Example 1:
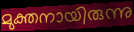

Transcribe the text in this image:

മുക്തനായിരുന്നു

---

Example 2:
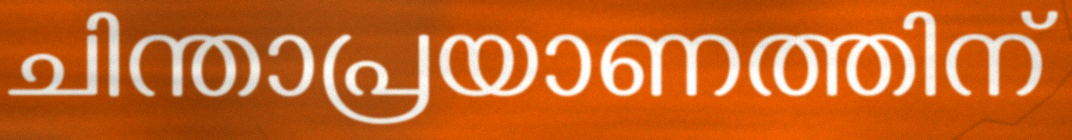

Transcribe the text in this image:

ചിന്താപ്രയാണത്തിന്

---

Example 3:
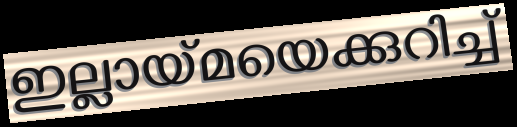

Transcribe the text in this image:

ഇല്ലായ്മയെക്കുറിച്ച്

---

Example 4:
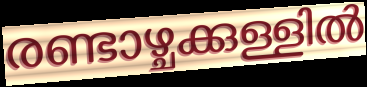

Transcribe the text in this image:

രണ്ടാഴ്ചക്കുള്ളിൽ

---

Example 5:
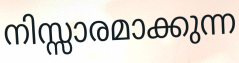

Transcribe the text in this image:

നിസ്സാരമാക്കുന്ന